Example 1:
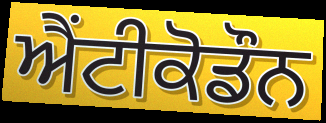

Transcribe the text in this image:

ਐਂਟੀਕੋਡੌਨ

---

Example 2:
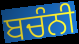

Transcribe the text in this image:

ਬਚੰਨੀ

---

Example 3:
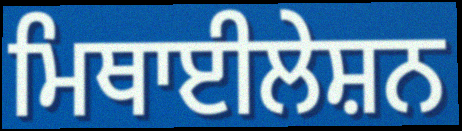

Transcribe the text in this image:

ਮਿਥਾਈਲੇਸ਼ਨ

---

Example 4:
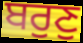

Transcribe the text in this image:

ਬਰੁਣੁ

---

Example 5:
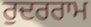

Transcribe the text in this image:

ਰੁਦਰਰਾਮ